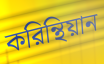
করিন্থিয়ান